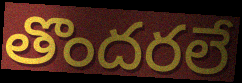
తొందరలే